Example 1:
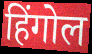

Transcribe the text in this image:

हिंगोल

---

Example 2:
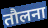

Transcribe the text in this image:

तौलना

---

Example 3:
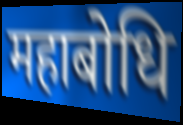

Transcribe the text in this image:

महाबोधि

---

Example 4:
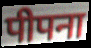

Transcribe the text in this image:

पीपना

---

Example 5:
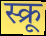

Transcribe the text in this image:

स्क्रू